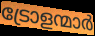
ട്രോളന്മാർ